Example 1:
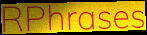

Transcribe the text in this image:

RPhrases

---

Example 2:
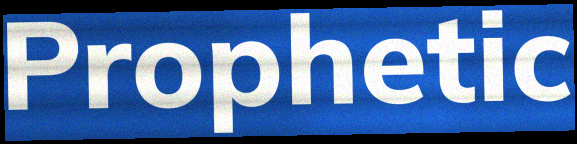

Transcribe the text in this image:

Prophetic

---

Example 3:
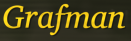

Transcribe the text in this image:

Grafman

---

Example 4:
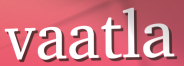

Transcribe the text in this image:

vaatla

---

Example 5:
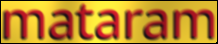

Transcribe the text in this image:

mataram